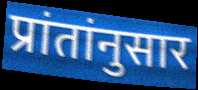
प्रांतांनुसार